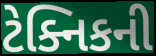
ટેક્નિકની